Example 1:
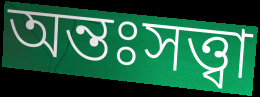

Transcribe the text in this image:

অন্তঃসত্ত্বা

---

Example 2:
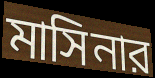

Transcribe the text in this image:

মাসিনার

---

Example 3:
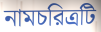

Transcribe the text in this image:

নামচরিত্রটি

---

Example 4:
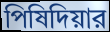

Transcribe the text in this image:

পিষিদিয়ার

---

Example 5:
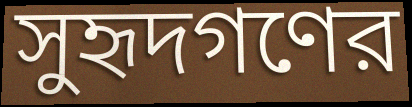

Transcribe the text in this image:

সুহৃদগণের